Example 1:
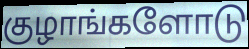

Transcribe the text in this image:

குழாங்களோடு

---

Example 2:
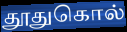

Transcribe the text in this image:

தூதுகொல்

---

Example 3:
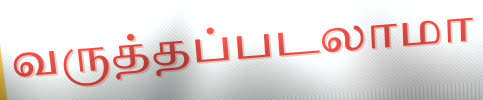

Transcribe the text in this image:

வருத்தப்படலாமா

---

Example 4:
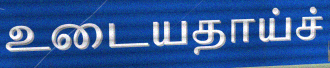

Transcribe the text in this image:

உடையதாய்ச்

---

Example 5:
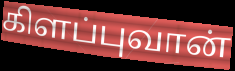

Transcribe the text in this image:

கிளப்புவான்